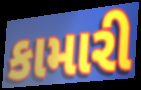
કામારી